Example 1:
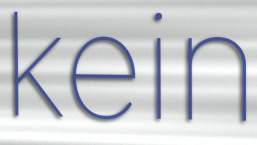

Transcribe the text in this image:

kein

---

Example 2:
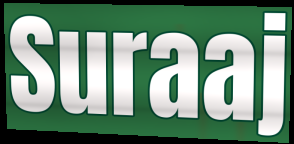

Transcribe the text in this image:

Suraaj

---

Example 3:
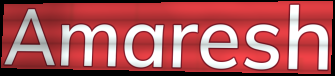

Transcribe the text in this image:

Amaresh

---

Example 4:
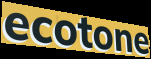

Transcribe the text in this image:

ecotone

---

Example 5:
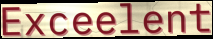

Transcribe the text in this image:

Exceelent